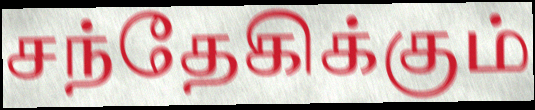
சந்தேகிக்கும்